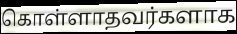
கொள்ளாதவர்களாக